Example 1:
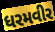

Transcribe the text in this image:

ધરમવીર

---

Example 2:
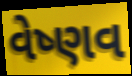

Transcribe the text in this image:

વેષ્ણવ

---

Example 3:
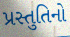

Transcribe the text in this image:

પ્રસ્તુતિનો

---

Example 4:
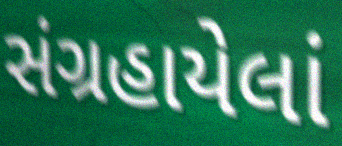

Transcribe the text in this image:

સંગ્રહાયેલાં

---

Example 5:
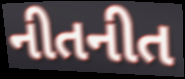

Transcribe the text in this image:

નીતનીત